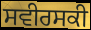
ਸਵੀਰਸਕੀ